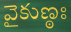
వైకుణ్ఠః